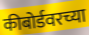
कीबोर्डवरच्या